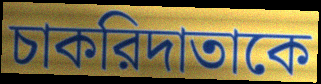
চাকরিদাতাকে